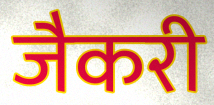
जैकरी